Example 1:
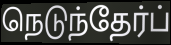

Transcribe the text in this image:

நெடுந்தேர்ப்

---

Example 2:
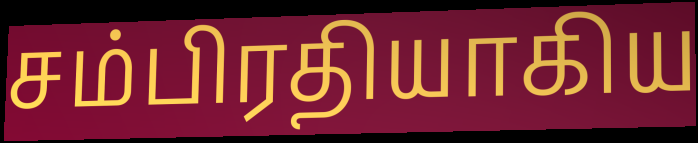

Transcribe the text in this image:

சம்பிரதியாகிய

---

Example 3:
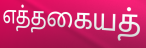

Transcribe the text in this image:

எத்தகையத்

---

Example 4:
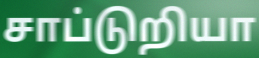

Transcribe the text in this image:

சாப்டுறியா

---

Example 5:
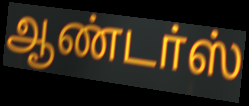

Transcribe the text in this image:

ஆண்டர்ஸ்